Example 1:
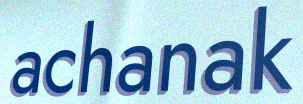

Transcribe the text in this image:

achanak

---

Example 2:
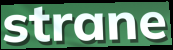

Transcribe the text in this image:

strane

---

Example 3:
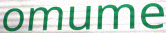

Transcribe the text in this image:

omume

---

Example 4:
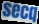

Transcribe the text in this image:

secq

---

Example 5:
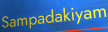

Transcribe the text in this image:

Sampadakiyam